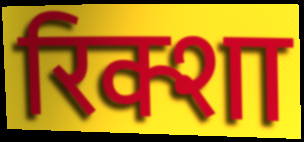
रिक्शा